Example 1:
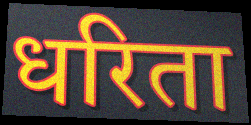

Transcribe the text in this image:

धरिता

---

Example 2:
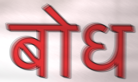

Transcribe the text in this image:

बोध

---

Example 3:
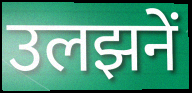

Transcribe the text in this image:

उलझनें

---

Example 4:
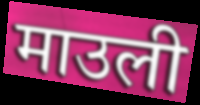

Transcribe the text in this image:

माउली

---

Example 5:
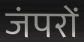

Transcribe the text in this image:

जंपरों